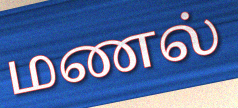
மணல்